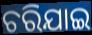
ଚରିଯାଇ